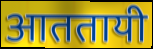
आततायी